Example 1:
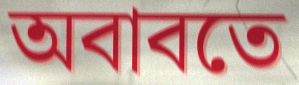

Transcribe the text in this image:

অবাবতে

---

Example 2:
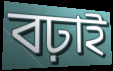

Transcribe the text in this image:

বঢ়াই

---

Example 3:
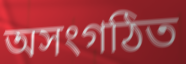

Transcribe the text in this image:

অসংগঠিত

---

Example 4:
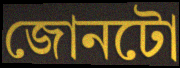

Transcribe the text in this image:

জোনটো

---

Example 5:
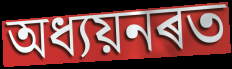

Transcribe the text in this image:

অধ্যয়নৰত